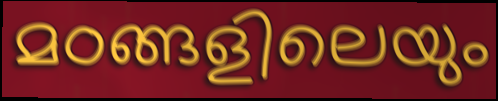
മഠങ്ങളിലെയും